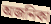
অজনিকা